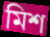
মিশ